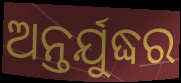
ଅନ୍ତର୍ଯୁଦ୍ଧର